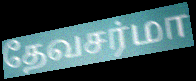
தேவசர்மா